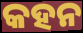
କହନ